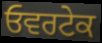
ਓਵਰਟੇਕ